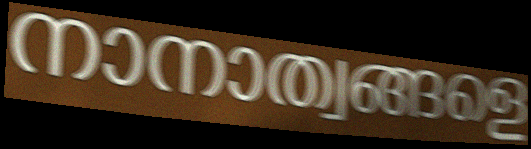
നാനാത്വങ്ങളെ